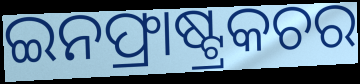
ଇନଫ୍ରାଷ୍ଟ୍ରକଚର